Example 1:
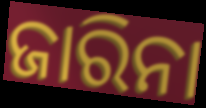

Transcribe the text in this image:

ଜାରିନା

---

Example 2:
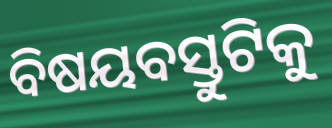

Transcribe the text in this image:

ବିଷୟବସ୍ତୁଟିକୁ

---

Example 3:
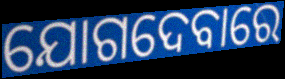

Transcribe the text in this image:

ଯୋଗଦେବାରେ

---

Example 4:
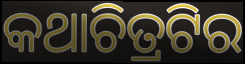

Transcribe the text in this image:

କଥାଚିତ୍ରଟିର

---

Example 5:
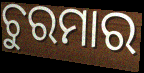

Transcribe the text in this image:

ଚୁରମାର